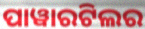
ପାୱାରଟିଲର